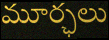
మూర్ఛలు